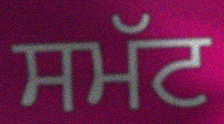
ਸਮੱਟ